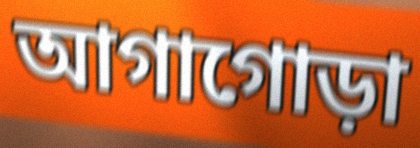
আগাগোড়া